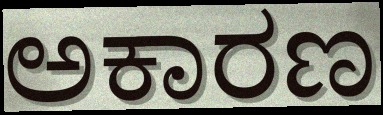
ಅಕಾರಣ